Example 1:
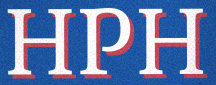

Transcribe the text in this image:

HPH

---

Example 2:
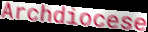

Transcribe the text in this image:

Archdiocese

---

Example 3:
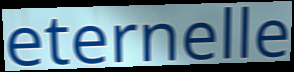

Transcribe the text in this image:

eternelle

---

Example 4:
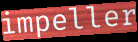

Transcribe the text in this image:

impeller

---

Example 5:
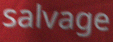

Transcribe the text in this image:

salvage